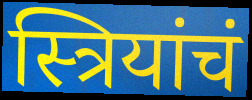
स्त्रियांचं